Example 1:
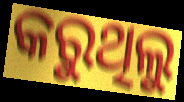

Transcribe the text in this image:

କରୁଥିଲୁ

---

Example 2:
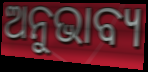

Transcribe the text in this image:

ଅନୁଭାବ୍ୟ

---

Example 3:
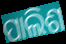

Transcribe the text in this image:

ପାଲିଶ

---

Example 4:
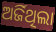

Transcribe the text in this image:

ଅର୍ଜିଥିଲା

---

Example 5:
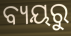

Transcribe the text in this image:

ବ୍ୟୟରୁ